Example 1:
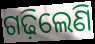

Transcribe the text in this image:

ଗଢ଼ିଲେଣି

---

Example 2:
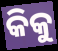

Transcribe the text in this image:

କିକୁ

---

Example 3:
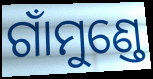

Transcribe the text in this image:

ଗାଁମୁଣ୍ଡେ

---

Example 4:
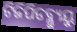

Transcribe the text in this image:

ଟିଜିପିଡବ୍ଲ୍ୟୁୟୁ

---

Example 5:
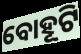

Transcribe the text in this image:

ବୋହୂଟି